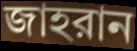
জাহরান